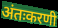
अंतःकरणी